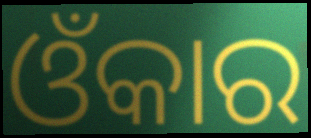
ଓଁକାର